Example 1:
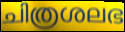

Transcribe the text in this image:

ചിത്രശലഭ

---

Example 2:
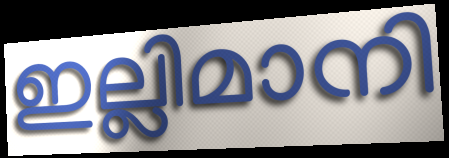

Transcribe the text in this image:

ഇല്ലിമാനി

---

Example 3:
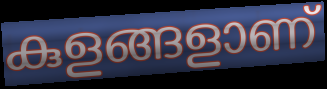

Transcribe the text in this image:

കുളങ്ങളാണ്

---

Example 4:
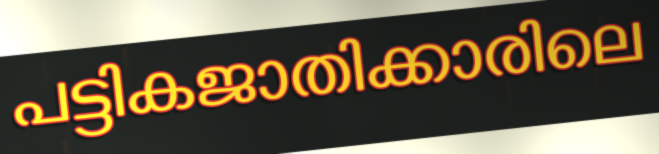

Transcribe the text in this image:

പട്ടികജാതിക്കാരിലെ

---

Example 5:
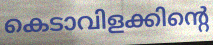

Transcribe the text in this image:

കെടാവിളക്കിന്റെ